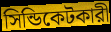
সিন্ডিকেটকারী